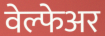
वेल्फेअर